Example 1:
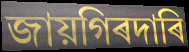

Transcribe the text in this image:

জায়গিৰদাৰি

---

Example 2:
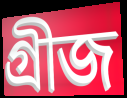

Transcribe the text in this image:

গ্ৰীজ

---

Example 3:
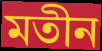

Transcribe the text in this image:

মতীন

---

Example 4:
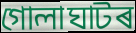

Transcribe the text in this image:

গোলাঘাটৰ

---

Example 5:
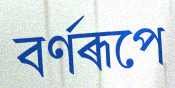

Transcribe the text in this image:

বৰ্ণৰূপে